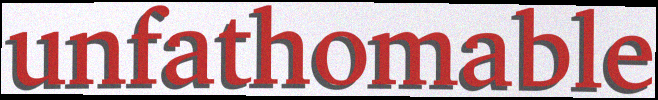
unfathomable